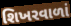
શિખરવાળાં